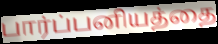
பார்ப்பனியத்தை